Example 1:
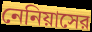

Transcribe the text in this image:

নেনিয়াসের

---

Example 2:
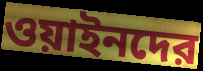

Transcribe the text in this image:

ওয়াইনদের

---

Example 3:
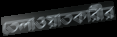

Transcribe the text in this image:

তেলাওয়াতকারীর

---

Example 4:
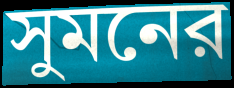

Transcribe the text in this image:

সুমনের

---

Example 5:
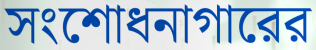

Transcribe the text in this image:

সংশোধনাগারের